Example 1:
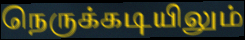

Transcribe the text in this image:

நெருக்கடியிலும்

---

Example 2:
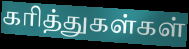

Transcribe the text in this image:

கரித்துகள்கள்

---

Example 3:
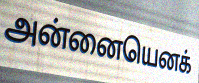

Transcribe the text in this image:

அன்னையெனக்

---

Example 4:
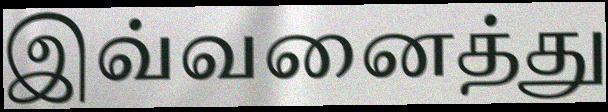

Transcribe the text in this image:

இவ்வனைத்து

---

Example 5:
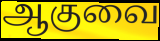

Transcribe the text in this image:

ஆகுவை